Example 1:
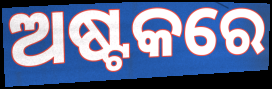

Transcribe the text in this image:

ଅଷ୍ଟକରେ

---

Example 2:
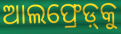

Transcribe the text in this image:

ଆଲଫ୍ରେଡ଼୍‍କୁ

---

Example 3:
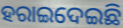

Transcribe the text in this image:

ହରାଇଦେଇଛି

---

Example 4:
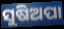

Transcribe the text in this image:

ସୁଷିଅପା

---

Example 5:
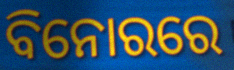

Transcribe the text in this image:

ବିନୋରରେ